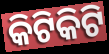
କିଟିକିଟି